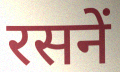
रसनें